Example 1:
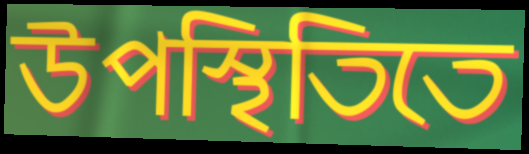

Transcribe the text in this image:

উপস্থিতিতে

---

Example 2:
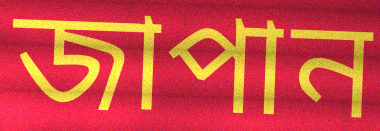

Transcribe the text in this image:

জাপান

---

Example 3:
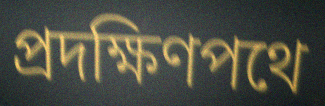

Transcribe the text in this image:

প্রদক্ষিণপথে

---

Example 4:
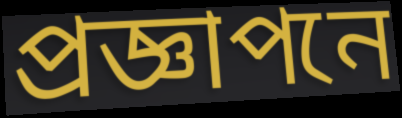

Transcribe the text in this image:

প্রজ্ঞাপনে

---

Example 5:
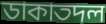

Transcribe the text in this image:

ডাকাতদল